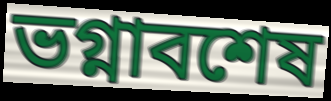
ভগ্নাবশেষ